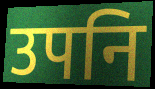
उपनि